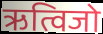
ऋत्विजो